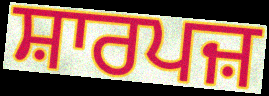
ਸ਼ਾਰਪਜ਼